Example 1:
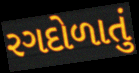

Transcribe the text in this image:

રગદોળાતું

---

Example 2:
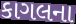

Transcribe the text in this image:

કાગલના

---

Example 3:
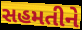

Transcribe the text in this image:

સહમતીને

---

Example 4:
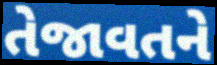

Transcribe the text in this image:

તેજાવતને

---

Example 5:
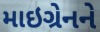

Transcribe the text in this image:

માઇગ્રેનને